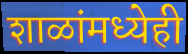
शाळांमध्येही